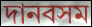
দানবসম